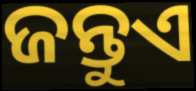
ଜନ୍ତୁଏ